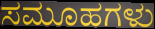
ಸಮೂಹಗಳು